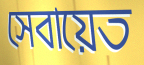
সেবায়েত